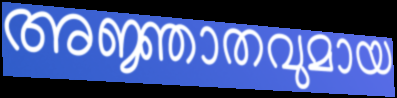
അജ്ഞാതവുമായ